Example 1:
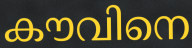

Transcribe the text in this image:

കൗവിനെ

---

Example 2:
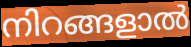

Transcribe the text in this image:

നിറങ്ങളാൽ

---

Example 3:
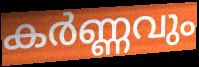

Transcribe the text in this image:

കർണ്ണവും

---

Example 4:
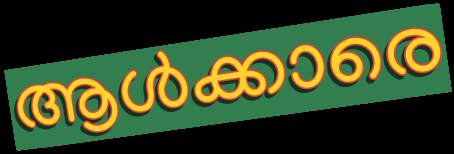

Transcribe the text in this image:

ആൾക്കാരെ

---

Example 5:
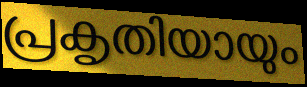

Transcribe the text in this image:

പ്രകൃതിയായും